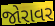
જોરાવર